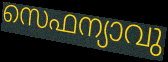
സെഫന്യാവു